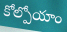
కోల్పోయాం